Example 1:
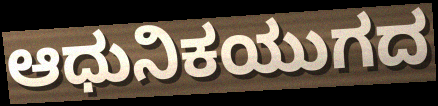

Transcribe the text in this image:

ಆಧುನಿಕಯುಗದ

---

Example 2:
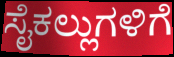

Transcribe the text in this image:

ಸೈಕಲ್ಲುಗಳಿಗೆ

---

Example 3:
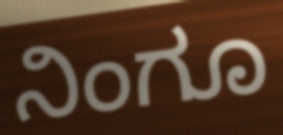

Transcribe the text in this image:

ನಿಂಗೂ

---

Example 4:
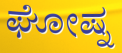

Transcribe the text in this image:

ಘೋಷ್ನ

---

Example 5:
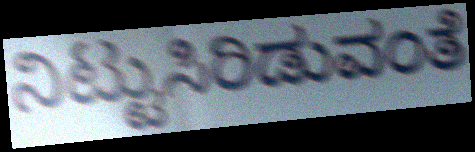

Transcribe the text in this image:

ನಿಟ್ಟುಸಿರಿಡುವಂತೆ